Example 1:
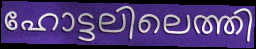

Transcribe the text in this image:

ഹോട്ടലിലെത്തി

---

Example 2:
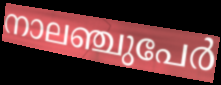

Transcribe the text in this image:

നാലഞ്ചുപേർ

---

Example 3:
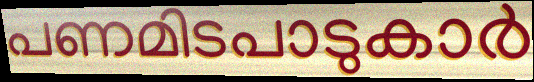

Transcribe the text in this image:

പണമിടപാടുകാർ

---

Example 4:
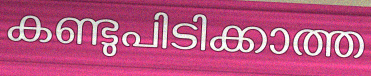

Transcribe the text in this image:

കണ്ടുപിടിക്കാത്ത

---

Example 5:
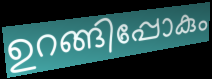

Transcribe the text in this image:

ഉറങ്ങിപ്പോകും